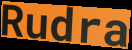
Rudra